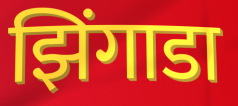
झिंगाडा